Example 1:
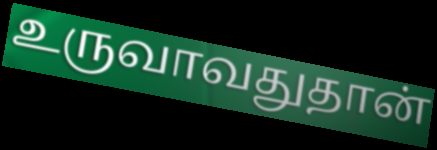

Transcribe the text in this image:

உருவாவதுதான்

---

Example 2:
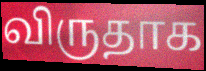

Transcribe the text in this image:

விருதாக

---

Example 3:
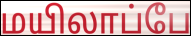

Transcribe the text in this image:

மயிலாப்பே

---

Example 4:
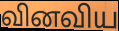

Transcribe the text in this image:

வினவிய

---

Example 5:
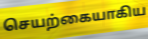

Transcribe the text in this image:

செயற்கையாகிய